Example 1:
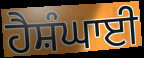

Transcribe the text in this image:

ਹੈਸ਼ੰਘਾਈ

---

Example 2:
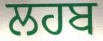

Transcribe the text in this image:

ਲਹਬ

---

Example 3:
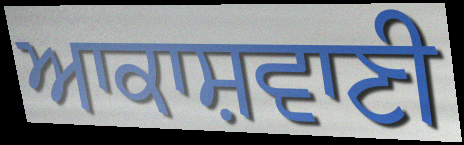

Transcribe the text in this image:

ਆਕਾਸ਼ਵਾਣੀ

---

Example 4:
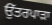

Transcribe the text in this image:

ਉੱਤਰਪਾੜਾ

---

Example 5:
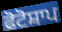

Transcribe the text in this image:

ਫੋਟੋਸ਼ਾਪ